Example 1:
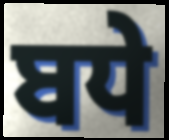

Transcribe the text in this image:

ਬਧੇ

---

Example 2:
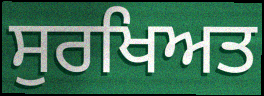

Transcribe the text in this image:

ਸੁਰਖਿਅਤ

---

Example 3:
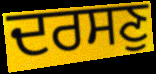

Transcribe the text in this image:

ਦਰਸਣੁ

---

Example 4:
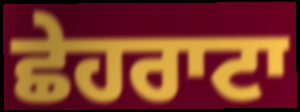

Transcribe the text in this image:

ਛੇਹਰਾਟਾ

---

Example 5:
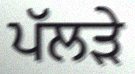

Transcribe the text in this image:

ਪੱਲੜੇ